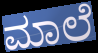
ಮಾಲೆ